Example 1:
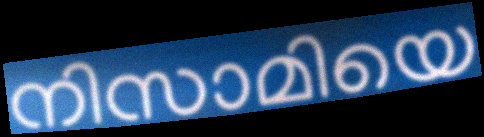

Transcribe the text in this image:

നിസാമിയെ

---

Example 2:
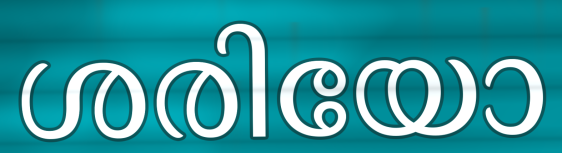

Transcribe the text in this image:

ശരിയോ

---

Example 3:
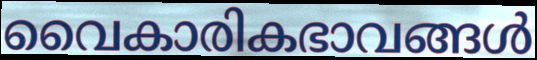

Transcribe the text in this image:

വൈകാരികഭാവങ്ങൾ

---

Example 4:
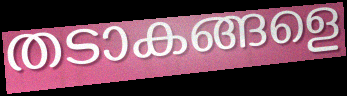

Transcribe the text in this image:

തടാകങ്ങളെ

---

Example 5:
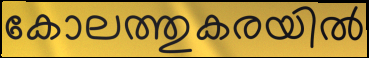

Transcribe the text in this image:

കോലത്തുകരയിൽ